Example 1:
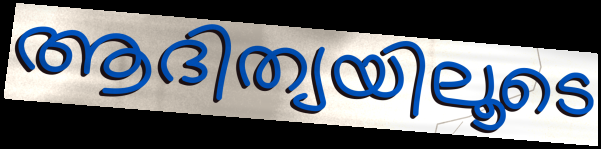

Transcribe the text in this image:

ആദിത്യയിലൂടെ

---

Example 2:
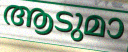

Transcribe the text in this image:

ആടുമാ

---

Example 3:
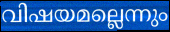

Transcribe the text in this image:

വിഷയമല്ലെന്നും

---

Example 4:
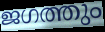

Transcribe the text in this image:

ജഗത്തും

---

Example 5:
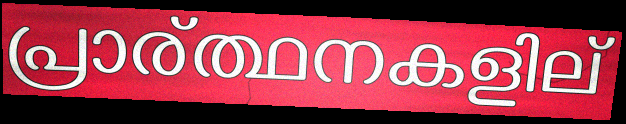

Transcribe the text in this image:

പ്രാര്ത്ഥനകളില്